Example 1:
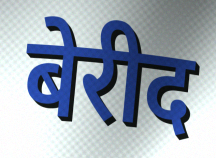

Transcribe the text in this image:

बेरीद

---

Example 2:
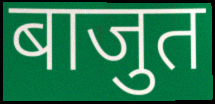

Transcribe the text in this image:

बाजुत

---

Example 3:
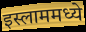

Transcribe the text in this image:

इस्लाममध्ये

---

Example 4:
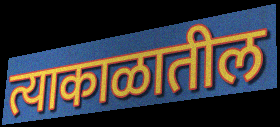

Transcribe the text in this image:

त्याकाळातील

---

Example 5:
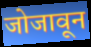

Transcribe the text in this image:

जोजावून